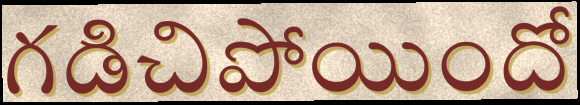
గడిచిపోయిందో